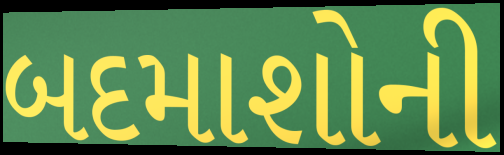
બદમાશોની